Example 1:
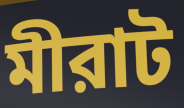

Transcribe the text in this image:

মীরাট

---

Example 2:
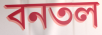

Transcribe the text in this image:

বনতল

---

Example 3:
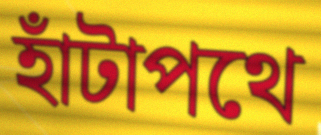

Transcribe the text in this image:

হাঁটাপথে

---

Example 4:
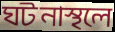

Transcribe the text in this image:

ঘটনাস্থলে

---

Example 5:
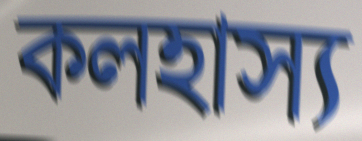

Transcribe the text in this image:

কলহাস্য